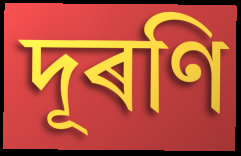
দূৰণি